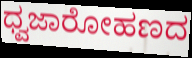
ಧ್ವಜಾರೋಹಣದ